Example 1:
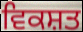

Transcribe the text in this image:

ਵਿਕਸ਼ਤ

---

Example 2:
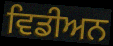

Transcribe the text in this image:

ਵਿਡੀਅਨ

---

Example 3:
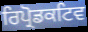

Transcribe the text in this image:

ਰਿਪ੍ਰੋਡਕਟਿਵ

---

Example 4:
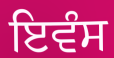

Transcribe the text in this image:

ਇਵੰਸ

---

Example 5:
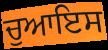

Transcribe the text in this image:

ਚੁਆਇਸ